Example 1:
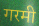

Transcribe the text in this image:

गरमी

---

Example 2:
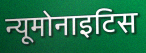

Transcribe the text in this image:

न्यूमोनाइटिस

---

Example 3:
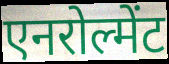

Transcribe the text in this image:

एनरोल्मेंट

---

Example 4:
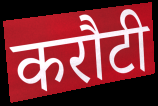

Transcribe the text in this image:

करौटी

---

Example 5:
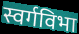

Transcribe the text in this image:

स्वर्गविभा